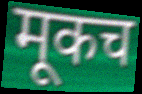
मूकच